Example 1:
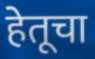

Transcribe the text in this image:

हेतूचा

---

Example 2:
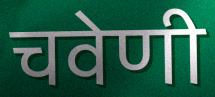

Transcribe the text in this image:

चवेणी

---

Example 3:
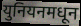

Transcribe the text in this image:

युनियनमधून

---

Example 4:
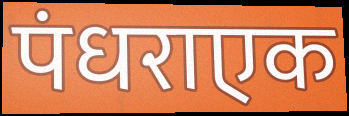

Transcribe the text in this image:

पंधराएक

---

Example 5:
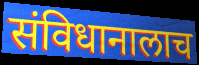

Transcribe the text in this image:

संविधानालाच